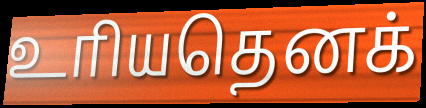
உரியதெனக்